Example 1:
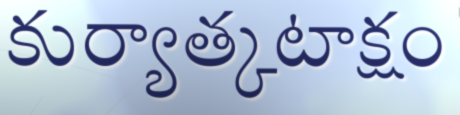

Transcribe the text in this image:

కుర్యాత్కటాక్షం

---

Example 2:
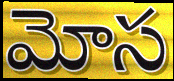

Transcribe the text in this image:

మోస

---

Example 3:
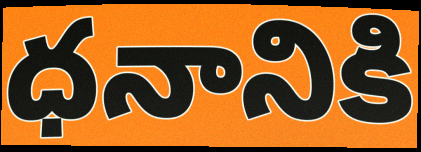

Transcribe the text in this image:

ధనానికి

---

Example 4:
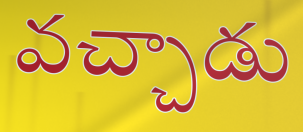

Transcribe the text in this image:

వచ్చాడు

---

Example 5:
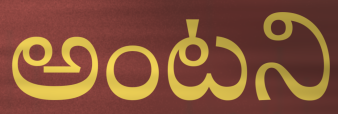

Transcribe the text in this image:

అంటని